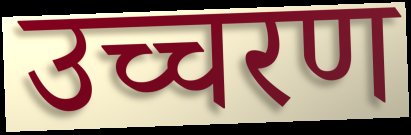
उच्चरण